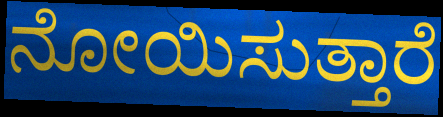
ನೋಯಿಸುತ್ತಾರೆ